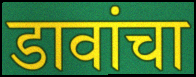
डावांचा